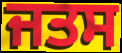
ਜਤਸ